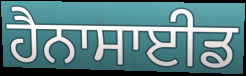
ਹੈਨਾਸਾਈਡ